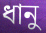
ধানু